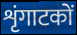
शृंगाटकों